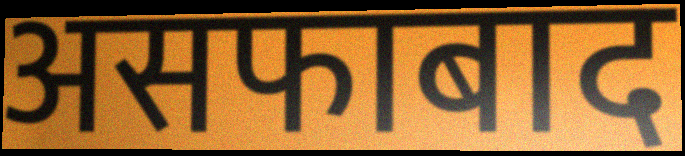
असफाबाद